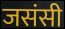
जसंसी